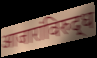
आजारांविरुद्ध